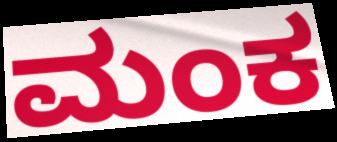
ಮಂಕ